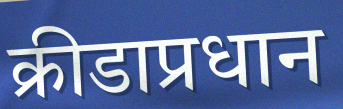
क्रीडाप्रधान